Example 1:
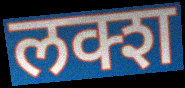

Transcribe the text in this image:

लक्श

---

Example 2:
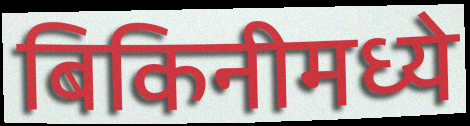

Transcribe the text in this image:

बिकिनीमध्ये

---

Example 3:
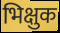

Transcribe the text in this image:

भिक्षुक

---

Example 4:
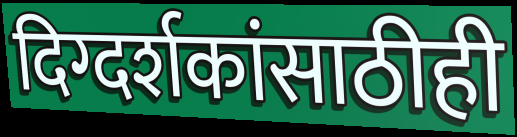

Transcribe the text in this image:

दिग्दर्शकांसाठीही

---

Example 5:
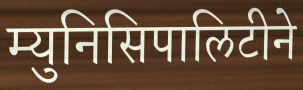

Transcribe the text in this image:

म्युनिसिपालिटीने